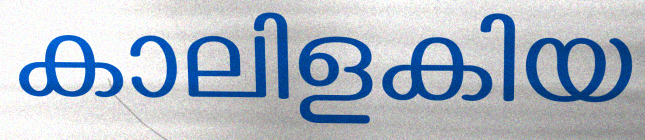
കാലിളകിയ